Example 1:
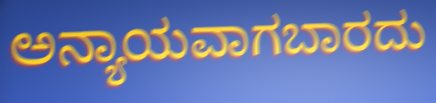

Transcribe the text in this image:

ಅನ್ಯಾಯವಾಗಬಾರದು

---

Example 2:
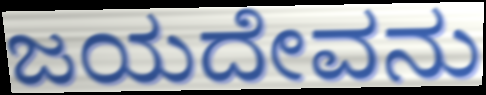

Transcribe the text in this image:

ಜಯದೇವನು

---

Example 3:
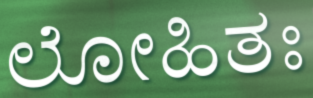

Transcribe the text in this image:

ಲೋಹಿತಃ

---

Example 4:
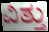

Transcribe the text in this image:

ವಿತ್ತು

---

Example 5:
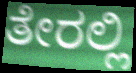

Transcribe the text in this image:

ತೇರಲ್ಲಿ